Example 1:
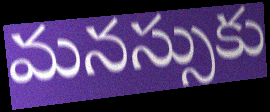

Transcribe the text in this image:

మనస్సుకు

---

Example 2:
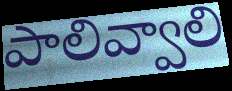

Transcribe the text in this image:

పాలివ్వాలి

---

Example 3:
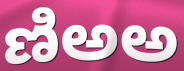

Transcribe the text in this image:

ణిఅఅ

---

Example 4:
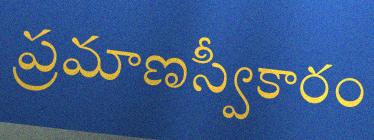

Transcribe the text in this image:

ప్రమాణస్వీకారం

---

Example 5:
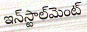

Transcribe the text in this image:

ఇన్‌స్టాల్‌మెంట్